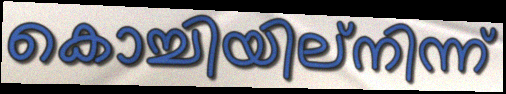
കൊച്ചിയില്നിന്ന്